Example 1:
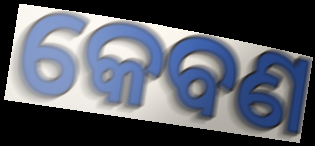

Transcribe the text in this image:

କେବଣ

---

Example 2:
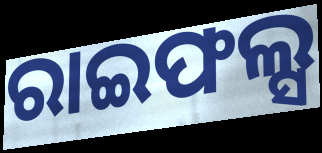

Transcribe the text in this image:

ରାଇଫଲ୍ସ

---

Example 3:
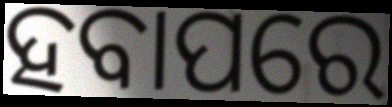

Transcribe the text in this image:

ହବାପରେ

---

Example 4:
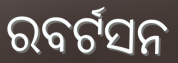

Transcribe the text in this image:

ରବର୍ଟସନ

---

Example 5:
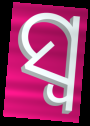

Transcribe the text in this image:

ସ୍ୱ